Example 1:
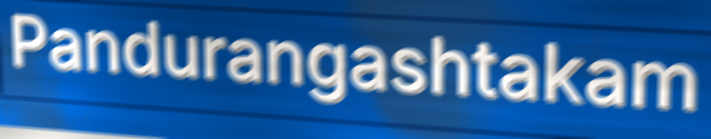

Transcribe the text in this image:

Pandurangashtakam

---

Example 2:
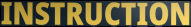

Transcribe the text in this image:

INSTRUCTION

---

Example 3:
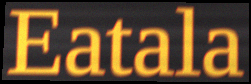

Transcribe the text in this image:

Eatala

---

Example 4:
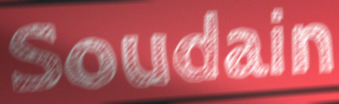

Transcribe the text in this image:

Soudain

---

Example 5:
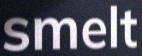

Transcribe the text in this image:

smelt